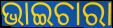
ଭାଇଚାରା